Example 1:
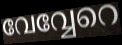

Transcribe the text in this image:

വേവ്വേറെ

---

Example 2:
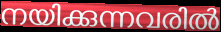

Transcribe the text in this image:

നയിക്കുന്നവരിൽ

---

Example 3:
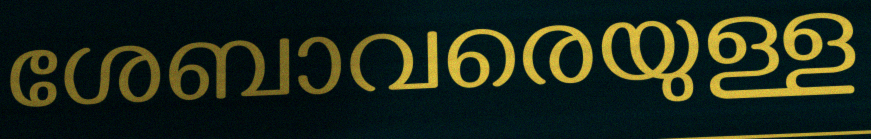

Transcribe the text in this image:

ശേബാവരെയുള്ള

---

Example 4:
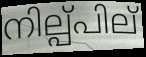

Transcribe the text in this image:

നില്പ്പില്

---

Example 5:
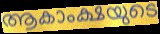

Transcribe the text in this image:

ആകാംക്ഷയുടെ